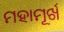
ମହାମୂର୍ଖ